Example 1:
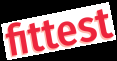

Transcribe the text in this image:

fittest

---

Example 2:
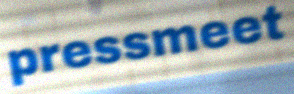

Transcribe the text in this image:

pressmeet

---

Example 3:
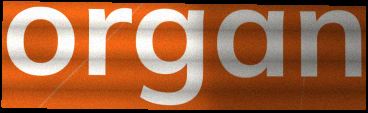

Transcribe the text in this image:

organ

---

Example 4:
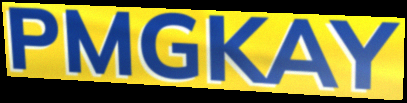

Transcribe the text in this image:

PMGKAY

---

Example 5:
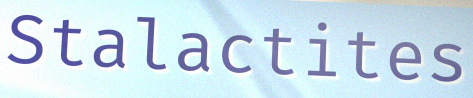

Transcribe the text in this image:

Stalactites